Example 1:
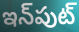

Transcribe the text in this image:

ఇన్‌పుట్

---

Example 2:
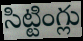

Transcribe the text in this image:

సిట్టింగ్లు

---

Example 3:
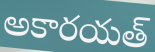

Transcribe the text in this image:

అకారయత్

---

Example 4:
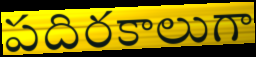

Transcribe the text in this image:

పదిరకాలుగా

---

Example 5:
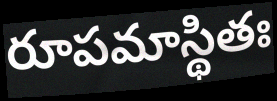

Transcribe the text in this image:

రూపమాస్థితః